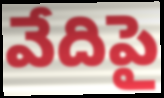
వేదిపై